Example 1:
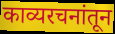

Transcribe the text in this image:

काव्यरचनांतून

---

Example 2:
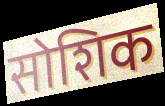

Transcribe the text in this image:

सोशिक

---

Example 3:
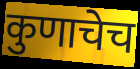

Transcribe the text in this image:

कुणाचेच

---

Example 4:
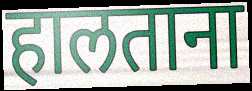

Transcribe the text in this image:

हालताना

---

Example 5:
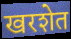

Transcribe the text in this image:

खरशेत